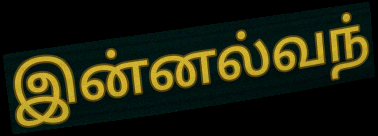
இன்னல்வந்